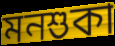
মনশুকা